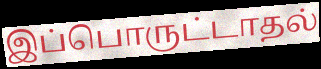
இப்பொருட்டாதல்